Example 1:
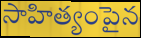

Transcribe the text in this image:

సాహిత్యంపైన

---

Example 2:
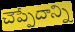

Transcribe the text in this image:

చెప్పేదాన్ని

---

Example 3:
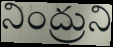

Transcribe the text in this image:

నింద్రుని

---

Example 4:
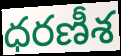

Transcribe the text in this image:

ధరణీశ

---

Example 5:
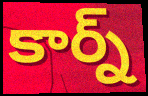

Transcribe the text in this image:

కార్న్